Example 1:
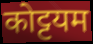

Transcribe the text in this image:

कोट्टयम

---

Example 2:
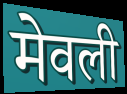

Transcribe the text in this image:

मेवली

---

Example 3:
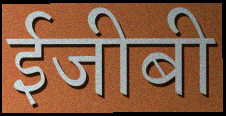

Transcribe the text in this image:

ईजीबी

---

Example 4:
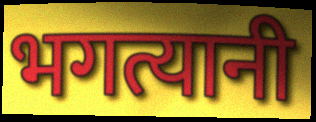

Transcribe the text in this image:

भगत्यानी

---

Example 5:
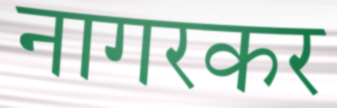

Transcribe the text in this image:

नागरकर